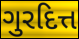
ગુરદિત્ત